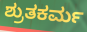
ಶ್ರುತಕರ್ಮ